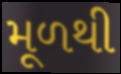
મૂળથી